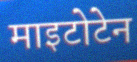
माइटोटेन